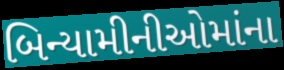
બિન્યામીનીઓમાંના